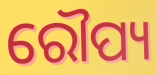
ରୌପ୍ୟ